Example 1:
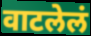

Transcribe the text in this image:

वाटलेलं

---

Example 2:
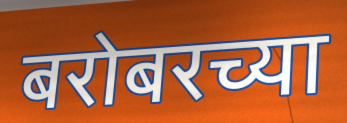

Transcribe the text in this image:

बरोबरच्या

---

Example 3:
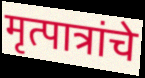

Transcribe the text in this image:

मृत्पात्रांचे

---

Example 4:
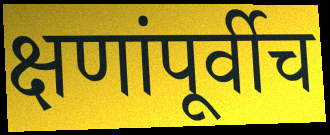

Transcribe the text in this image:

क्षणांपूर्वीच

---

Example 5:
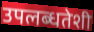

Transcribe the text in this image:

उपलब्धतेशी